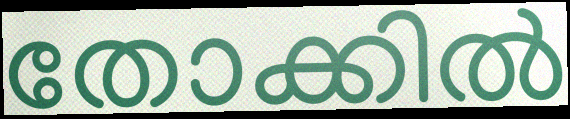
തോക്കിൽ